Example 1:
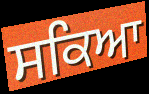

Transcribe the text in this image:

ਸਕਿਆ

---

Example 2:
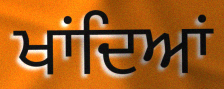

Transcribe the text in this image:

ਖਾਂਦਿਆਂ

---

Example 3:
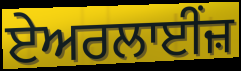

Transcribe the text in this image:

ਏਅਰਲਾਈਂਜ਼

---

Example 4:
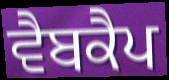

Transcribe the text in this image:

ਵੈਬਕੈਪ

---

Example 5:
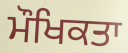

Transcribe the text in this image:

ਮੌਖਿਕਤਾ